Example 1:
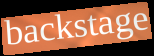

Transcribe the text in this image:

backstage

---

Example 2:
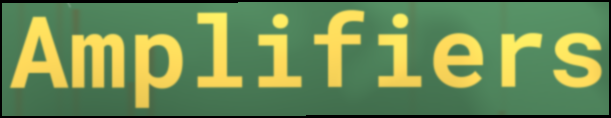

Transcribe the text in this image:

Amplifiers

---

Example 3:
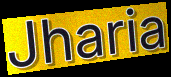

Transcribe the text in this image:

Jharia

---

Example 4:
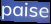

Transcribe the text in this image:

paise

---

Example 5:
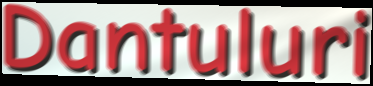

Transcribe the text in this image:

Dantuluri